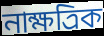
নাক্ষত্রিক